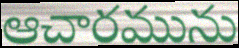
ఆచారమును